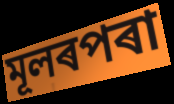
মূলৰপৰা